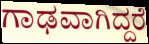
ಗಾಢವಾಗಿದ್ದರೆ